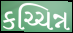
કચ્ચિન્ન